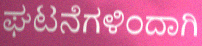
ಘಟನೆಗಳಿಂದಾಗಿ